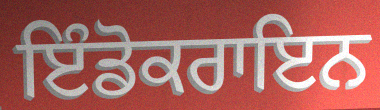
ਇੰਡੋਕਰਾਇਨ